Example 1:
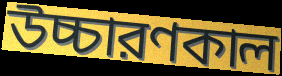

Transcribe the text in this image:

উচ্চারণকাল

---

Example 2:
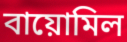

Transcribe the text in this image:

বায়োমিল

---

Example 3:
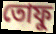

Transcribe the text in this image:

তোফু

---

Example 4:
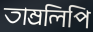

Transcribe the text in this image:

তাম্রলিপি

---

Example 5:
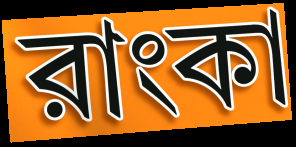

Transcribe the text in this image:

রাংকা